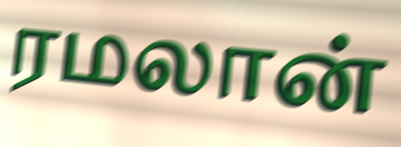
ரமலான்